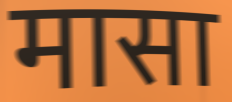
मासा